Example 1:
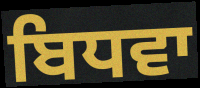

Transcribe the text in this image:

ਬਿਧਵਾ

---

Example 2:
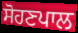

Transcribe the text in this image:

ਸੋਹਣਪਾਲ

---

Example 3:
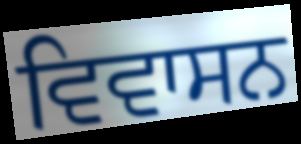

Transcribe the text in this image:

ਵਿਵਾਸਨ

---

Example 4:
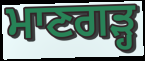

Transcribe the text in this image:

ਮਾਣਗੜ੍ਹ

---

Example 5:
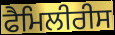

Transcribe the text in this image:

ਫੈਮਿਲੀਰੀਸ